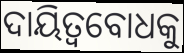
ଦାୟିତ୍ୱବୋଧକୁ